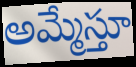
అమ్మేస్తూ